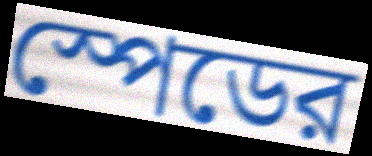
স্পেডের